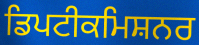
ਡਿਪਟੀਕਮਿਸ਼ਨਰ